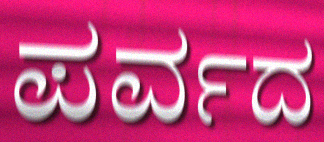
ಪರ್ವದ